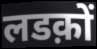
लडक़ों